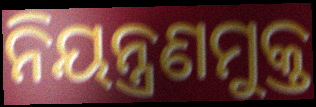
ନିୟନ୍ତ୍ରଣମୁକ୍ତ